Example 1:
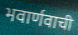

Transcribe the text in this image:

भवार्णवाची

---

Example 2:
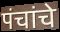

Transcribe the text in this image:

पंचांचे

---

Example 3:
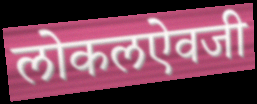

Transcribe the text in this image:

लोकलऐवजी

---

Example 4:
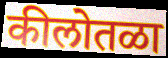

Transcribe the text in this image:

कीलोतळा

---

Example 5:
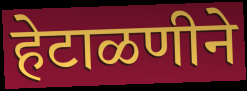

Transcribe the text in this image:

हेटाळणीने